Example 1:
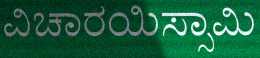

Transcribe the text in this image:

ವಿಚಾರಯಿಸ್ಸಾಮಿ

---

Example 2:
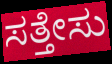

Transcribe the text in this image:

ಸತ್ತೇಸು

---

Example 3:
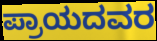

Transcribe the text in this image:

ಪ್ರಾಯದವರ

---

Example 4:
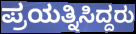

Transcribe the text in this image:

ಪ್ರಯತ್ನಿಸಿದ್ದರು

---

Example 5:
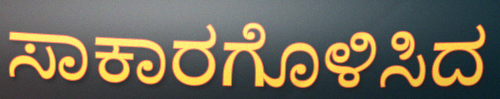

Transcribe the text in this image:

ಸಾಕಾರಗೊಳಿಸಿದ